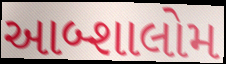
આબ્શાલોમ